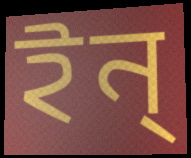
ইন্